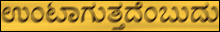
ಉಂಟಾಗುತ್ತದೆಂಬುದು